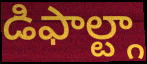
డిఫాల్ట్గా